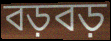
বড়বড়